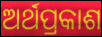
ଅର୍ଥପ୍ରକାଶ